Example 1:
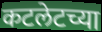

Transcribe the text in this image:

कटलेटच्या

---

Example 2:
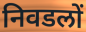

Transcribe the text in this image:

निवडलों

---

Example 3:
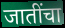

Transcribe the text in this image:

जातींचा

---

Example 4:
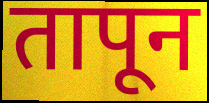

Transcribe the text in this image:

तापून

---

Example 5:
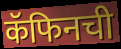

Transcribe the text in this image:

कॅफिनची